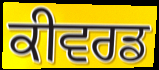
ਕੀਵਰਡ